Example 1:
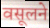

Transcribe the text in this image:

वसूलने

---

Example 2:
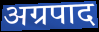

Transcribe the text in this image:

अग्रपाद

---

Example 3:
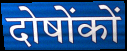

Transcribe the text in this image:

दोषोंकों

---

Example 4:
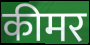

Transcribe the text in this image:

कीमर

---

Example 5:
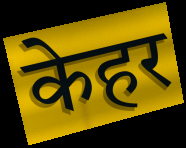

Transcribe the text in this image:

केहर